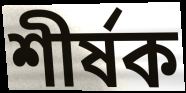
শীর্ষক